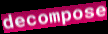
decompose